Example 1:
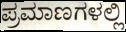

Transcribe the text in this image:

ಪ್ರಮಾಣಗಳಲ್ಲಿ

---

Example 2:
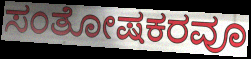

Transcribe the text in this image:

ಸಂತೋಷಕರವೂ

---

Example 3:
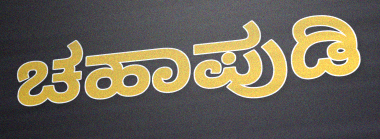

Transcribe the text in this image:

ಚಹಾಪುಡಿ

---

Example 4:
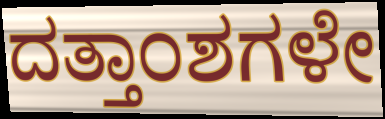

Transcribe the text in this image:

ದತ್ತಾಂಶಗಳೇ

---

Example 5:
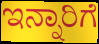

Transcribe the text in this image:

ಇನ್ನಾರಿಗೆ